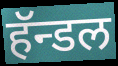
हॅन्डल